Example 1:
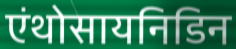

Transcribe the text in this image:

एंथोसायनिडिन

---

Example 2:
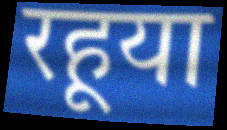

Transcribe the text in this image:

रहूया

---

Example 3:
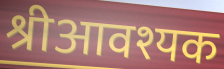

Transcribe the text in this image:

श्रीआवश्यक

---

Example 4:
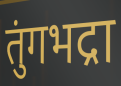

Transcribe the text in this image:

तुंगभद्रा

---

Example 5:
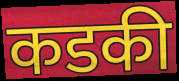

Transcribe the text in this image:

कडकी